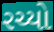
રચ્યો